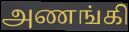
அணங்கி